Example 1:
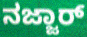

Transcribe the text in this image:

ನಜ್ಜಾರ್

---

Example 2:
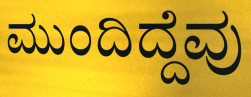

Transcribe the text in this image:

ಮುಂದಿದ್ದೆವು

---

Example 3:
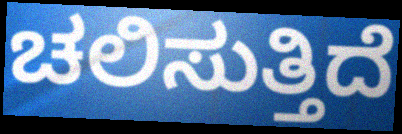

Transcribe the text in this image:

ಚಲಿಸುತ್ತಿದೆ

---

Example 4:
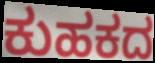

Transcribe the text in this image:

ಕುಹಕದ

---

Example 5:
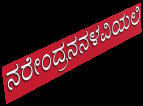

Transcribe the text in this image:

ನರೇಂದ್ರನನಳವಿಯಲಿ